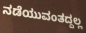
ನಡೆಯುವಂತದ್ದಲ್ಲ